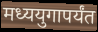
मध्ययुगापर्यंत